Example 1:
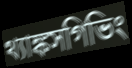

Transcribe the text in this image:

থ্যাঙ্কসগিভিং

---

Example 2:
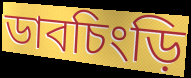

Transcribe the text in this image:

ডাবচিংড়ি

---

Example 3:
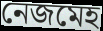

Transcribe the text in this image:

নেজমেহ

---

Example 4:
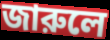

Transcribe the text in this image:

জারুলে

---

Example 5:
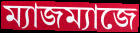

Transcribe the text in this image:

ম্যাজম্যাজে